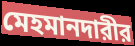
মেহমানদারীর